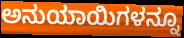
ಅನುಯಾಯಿಗಳನ್ನೂ